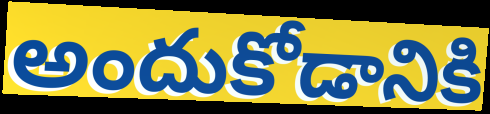
అందుకోడానికి